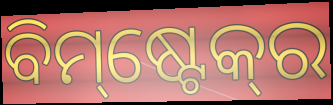
ବିମ୍‌ଷ୍ଟେକ୍‌ର